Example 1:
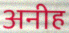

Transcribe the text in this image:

अनीह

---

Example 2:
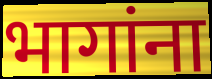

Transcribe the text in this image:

भागांना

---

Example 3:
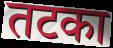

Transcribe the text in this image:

तटका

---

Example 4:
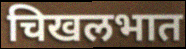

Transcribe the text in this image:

चिखलभात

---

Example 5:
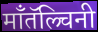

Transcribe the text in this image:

माँतॅल्चिनी